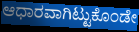
ಆಧಾರವಾಗಿಟ್ಟುಕೊಂಡೇ